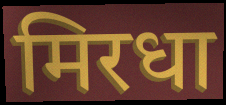
मिरधा